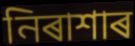
নিৰাশাৰ